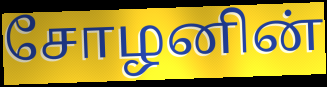
சோழனின்